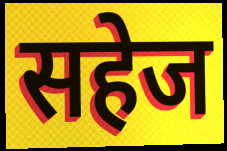
सहेज